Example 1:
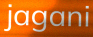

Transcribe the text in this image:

jagani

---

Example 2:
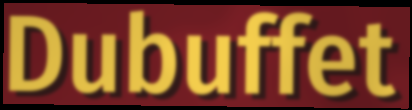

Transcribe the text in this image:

Dubuffet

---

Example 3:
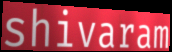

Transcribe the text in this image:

shivaram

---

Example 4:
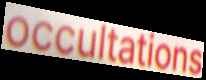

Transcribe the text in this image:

occultations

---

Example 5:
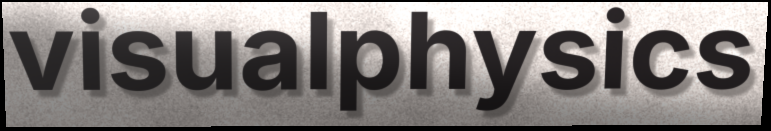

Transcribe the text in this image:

visualphysics